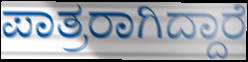
ಪಾತ್ರರಾಗಿದ್ದಾರೆ